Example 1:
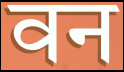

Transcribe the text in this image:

वन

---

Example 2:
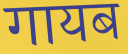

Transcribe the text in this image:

गायब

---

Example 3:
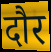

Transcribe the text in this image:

दौर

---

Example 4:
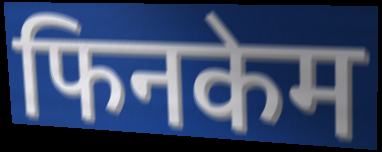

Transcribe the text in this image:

फिनकेम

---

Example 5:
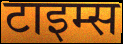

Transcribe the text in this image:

टाइम्स